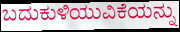
ಬದುಕುಳಿಯುವಿಕೆಯನ್ನು